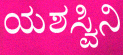
ಯಶಸ್ವಿನಿ